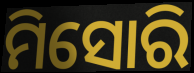
ମିସୋରି